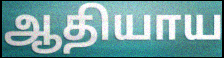
ஆதியாய